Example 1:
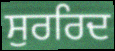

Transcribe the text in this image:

ਸੁਰਰਿਦ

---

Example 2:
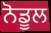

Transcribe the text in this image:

ਨੋਡੂਲ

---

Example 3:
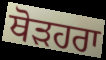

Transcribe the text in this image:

ਥੋੜਹਰਾ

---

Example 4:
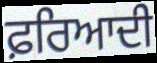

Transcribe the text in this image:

ਫ਼ਰਿਆਦੀ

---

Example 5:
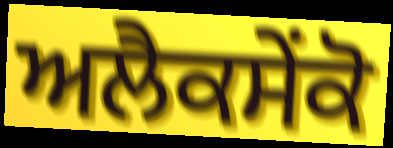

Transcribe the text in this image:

ਅਲੈਕਸੇਂਕੋ